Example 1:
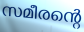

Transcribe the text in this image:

സമീരന്റെ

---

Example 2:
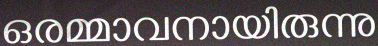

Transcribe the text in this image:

ഒരമ്മാവനായിരുന്നു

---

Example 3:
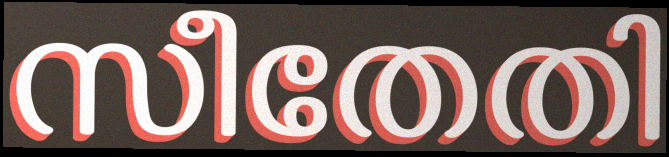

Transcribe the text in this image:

സീതേതി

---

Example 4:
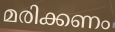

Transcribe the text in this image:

മരിക്കണം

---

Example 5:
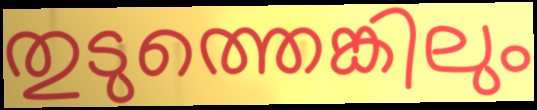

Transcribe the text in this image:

തുടുത്തെങ്കിലും